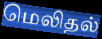
மெலிதல்